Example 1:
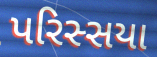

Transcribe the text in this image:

પરિસ્સયા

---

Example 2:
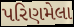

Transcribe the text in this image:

પરિણમેલા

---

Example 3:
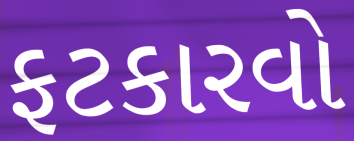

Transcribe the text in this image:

ફટકારવો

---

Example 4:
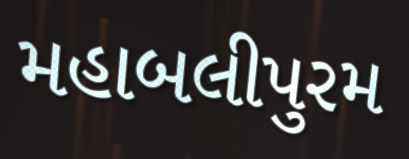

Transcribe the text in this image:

મહાબલીપુરમ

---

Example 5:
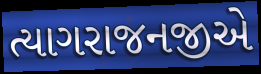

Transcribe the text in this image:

ત્યાગરાજનજીએ